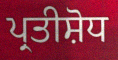
ਪ੍ਰਤੀਸ਼ੋਧ